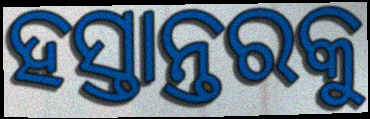
ହସ୍ତାନ୍ତରକୁ